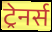
ट्रेनर्स